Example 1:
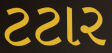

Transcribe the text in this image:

ટટાર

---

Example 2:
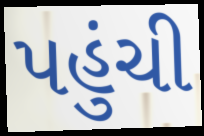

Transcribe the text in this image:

પહુંચી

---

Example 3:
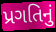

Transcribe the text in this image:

પ્રગતિનું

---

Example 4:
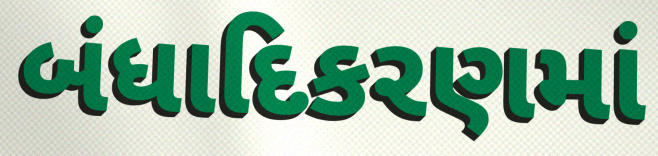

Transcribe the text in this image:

બંધાદિકરણમાં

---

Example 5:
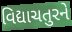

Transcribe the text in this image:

વિદ્યાચતુરને